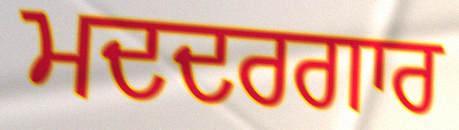
ਮਦਦਰਗਾਰ